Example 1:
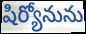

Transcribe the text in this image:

షిర్యోనును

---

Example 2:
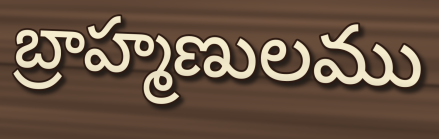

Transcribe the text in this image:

బ్రాహ్మణులము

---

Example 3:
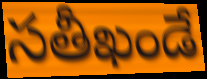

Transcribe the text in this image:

సతీఖండే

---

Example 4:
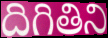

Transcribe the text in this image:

దిగితిని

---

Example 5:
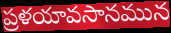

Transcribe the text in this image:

ప్రళయావసానమున